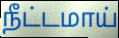
நீட்டமாய்